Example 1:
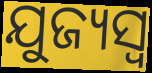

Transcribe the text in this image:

ଯୁଜ୍ୟସ୍ୱ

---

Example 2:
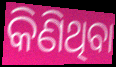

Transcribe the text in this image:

କିଣିଥିବା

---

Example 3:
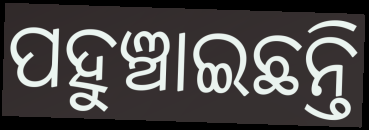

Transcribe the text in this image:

ପହୁଞ୍ଚାଇଛନ୍ତି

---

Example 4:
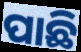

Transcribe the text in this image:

ପାଛି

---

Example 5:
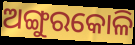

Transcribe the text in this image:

ଅଙ୍ଗୁରକୋଳି